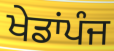
ਖੇਡਾਂਪੰਜ